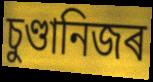
চুণ্ডানিজৰ